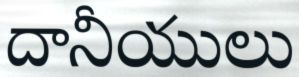
దానీయులు